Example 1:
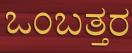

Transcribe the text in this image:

ಒಂಬತ್ತರ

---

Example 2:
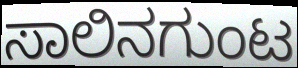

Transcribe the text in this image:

ಸಾಲಿನಗುಂಟ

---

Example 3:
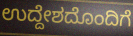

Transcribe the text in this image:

ಉದ್ದೇಶದೊಂದಿಗೆ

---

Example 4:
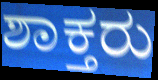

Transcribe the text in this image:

ಶಾಕ್ತರು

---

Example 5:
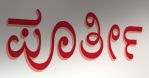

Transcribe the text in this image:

ಪೂರ್ತೀ